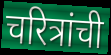
चरित्रांची